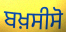
ਬਖ਼ਸੀਸੋ